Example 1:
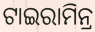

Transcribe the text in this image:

ଟାଇରାମିନ୍ର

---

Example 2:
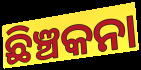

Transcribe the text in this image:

ଛିଞ୍ଚକନା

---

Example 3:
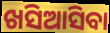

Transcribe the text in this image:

ଖସିଆସିବା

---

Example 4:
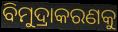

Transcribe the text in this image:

ବିମୁଦ୍ରାକରଣକୁ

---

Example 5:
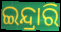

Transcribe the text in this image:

ଇନ୍ଦ୍ରାରି